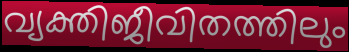
വ്യക്തിജീവിതത്തിലും